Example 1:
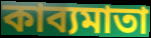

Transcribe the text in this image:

কাব্যমাতা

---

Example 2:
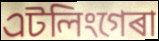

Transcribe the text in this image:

এটলিংগেৰা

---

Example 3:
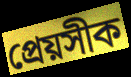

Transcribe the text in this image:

প্ৰেয়সীক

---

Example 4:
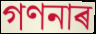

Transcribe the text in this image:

গণনাৰ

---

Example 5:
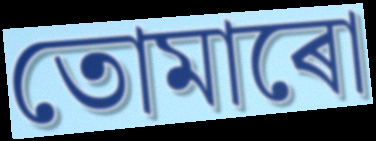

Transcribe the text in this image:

তোমাৰো